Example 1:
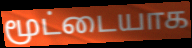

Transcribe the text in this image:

மூட்டையாக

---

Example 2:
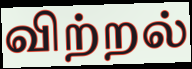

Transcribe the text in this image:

விற்றல்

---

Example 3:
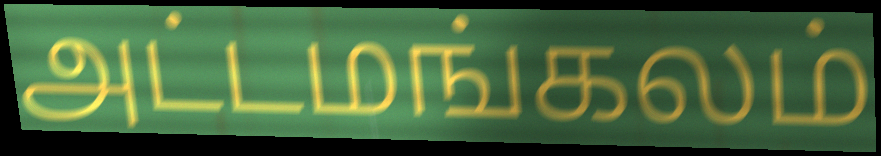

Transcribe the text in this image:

அட்டமங்கலம்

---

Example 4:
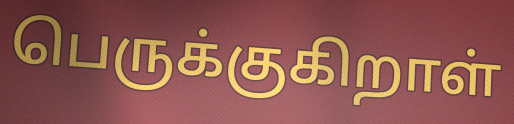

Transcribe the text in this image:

பெருக்குகிறாள்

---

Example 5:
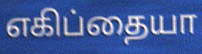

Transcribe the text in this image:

எகிப்தையா